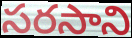
సరసాని